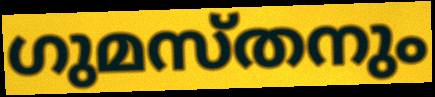
ഗുമസ്തനും